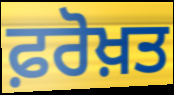
ਫ਼ਰੋਖ਼ਤ